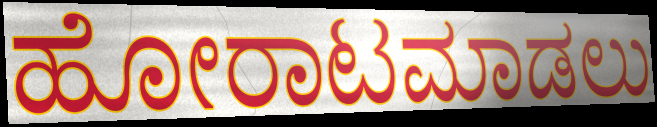
ಹೋರಾಟಮಾಡಲು